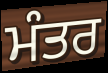
ਮੰਤਰ